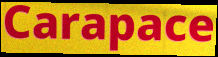
Carapace